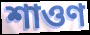
শাওণ